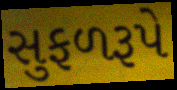
સુફળરૂપે